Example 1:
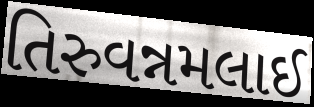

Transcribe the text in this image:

તિરુવન્નમલાઈ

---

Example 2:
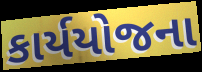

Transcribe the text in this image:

કાર્યયોજના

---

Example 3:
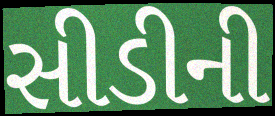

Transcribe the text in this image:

સીડીની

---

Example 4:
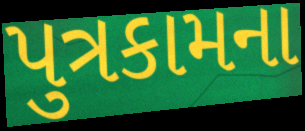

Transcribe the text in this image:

પુત્રકામના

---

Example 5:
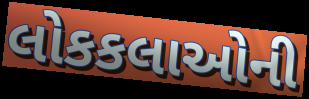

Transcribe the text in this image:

લોકકલાઓની